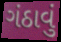
ગંઠાવું